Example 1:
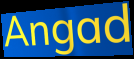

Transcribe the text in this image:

Angad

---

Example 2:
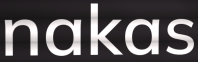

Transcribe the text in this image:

nakas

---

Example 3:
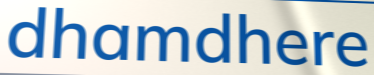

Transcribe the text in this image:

dhamdhere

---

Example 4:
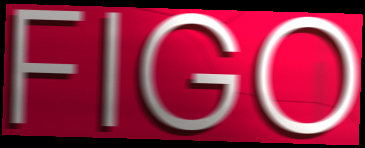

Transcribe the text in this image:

FIGO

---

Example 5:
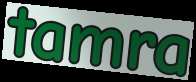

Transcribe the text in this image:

tamra